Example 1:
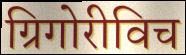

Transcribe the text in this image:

ग्रिगोरीविच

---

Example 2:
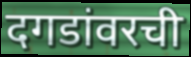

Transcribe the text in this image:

दगडांवरची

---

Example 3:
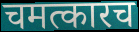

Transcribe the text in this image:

चमत्कारच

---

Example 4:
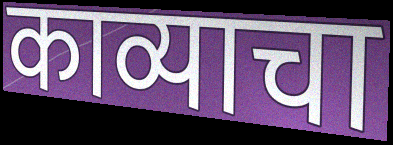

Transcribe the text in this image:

काव्याचा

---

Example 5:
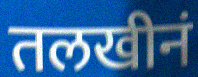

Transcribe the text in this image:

तलखीनं